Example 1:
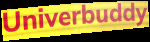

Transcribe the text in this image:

Univerbuddy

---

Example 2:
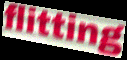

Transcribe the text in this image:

flitting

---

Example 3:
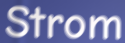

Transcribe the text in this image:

Strom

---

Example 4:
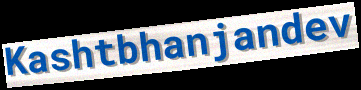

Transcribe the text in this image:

Kashtbhanjandev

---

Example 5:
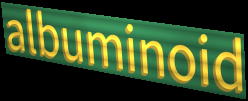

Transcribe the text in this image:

albuminoid